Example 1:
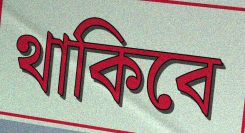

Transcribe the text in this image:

থাকিবে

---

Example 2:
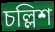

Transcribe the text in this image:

চল্লিশ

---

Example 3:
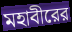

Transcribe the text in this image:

মহাবীরের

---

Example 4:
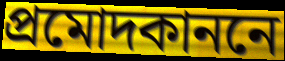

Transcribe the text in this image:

প্রমোদকাননে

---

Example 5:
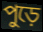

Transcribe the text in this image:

পুড়ে